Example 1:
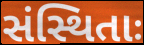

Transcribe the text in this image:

સંસ્થિતાઃ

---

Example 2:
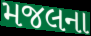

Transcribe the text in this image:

મજલના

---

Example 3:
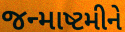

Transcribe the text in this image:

જન્માષ્ટમીને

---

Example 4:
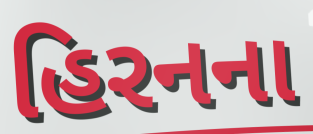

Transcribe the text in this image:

હિરનના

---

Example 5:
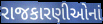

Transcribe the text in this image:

રાજકારણીઓનાં